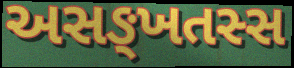
અસઙ્ખતસ્સ